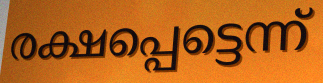
രക്ഷപ്പെട്ടെന്ന്